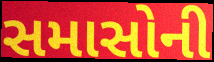
સમાસોની